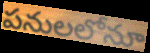
పనులలోనూ